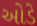
ઓડે